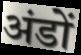
अंडों